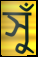
সুঁ